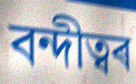
বন্দীত্বৰ